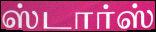
ஸ்டார்ஸ்